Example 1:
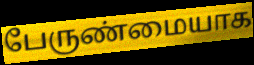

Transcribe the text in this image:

பேருண்மையாக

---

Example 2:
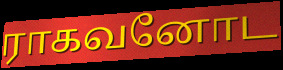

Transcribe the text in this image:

ராகவனோட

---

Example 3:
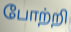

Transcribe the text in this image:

போற்றி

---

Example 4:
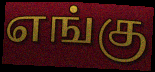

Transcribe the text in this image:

எங்கு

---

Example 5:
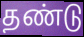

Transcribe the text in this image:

தண்டு